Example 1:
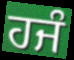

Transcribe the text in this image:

ਹਜੰ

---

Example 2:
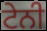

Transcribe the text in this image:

ਟੇਨੀ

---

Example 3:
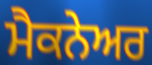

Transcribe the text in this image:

ਮੈਕਨੇਅਰ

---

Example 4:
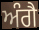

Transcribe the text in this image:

ਅੰਗੈ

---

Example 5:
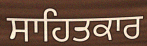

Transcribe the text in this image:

ਸਾਹਿਤਕਾਰ